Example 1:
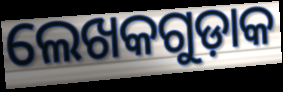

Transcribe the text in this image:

ଲେଖକଗୁଡ଼ାକ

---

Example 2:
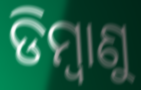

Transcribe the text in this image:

ଡିମ୍ବାଣୁ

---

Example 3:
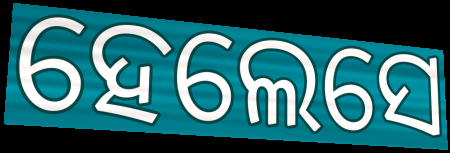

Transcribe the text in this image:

ହେଲେସେ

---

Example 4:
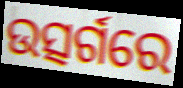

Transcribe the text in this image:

ଉତ୍ସର୍ଗରେ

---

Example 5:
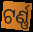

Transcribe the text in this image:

ଟର୍ଣ୍ଣ